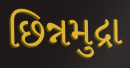
છિન્નમુદ્રા